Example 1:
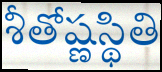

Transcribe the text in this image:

శీతోష్ణస్థితి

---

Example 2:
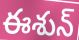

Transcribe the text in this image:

ఈశున్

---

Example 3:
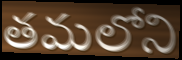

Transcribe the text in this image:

తమలోని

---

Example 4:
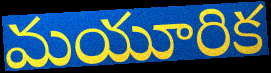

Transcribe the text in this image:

మయూరిక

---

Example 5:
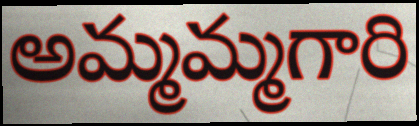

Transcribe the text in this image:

అమ్మమ్మగారి